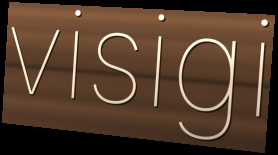
visigi